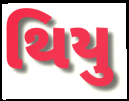
થિયુ